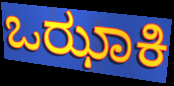
ಒಝಾಕಿ